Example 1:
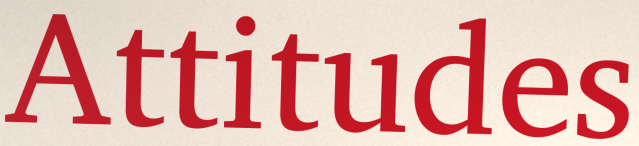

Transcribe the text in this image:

Attitudes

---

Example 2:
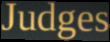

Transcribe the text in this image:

Judges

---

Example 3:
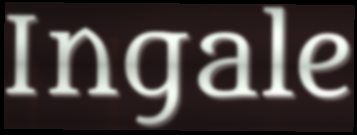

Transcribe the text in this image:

Ingale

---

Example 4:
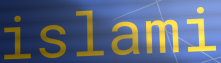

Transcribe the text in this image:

islami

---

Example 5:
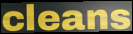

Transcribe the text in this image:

cleans